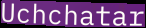
Uchchatar